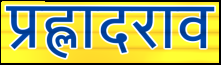
प्रह्लादराव